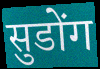
सुडोंग